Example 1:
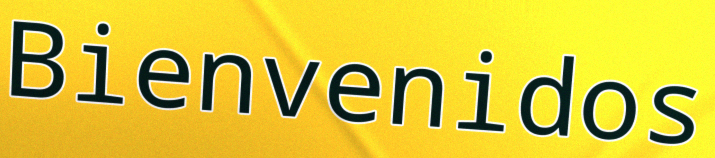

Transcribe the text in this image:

Bienvenidos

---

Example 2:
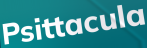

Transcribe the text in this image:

Psittacula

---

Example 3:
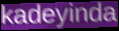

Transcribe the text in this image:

kadeyinda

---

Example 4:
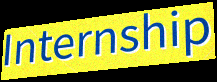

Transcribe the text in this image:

Internship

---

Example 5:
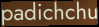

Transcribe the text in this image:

padichchu